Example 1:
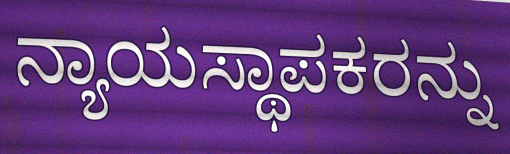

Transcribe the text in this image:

ನ್ಯಾಯಸ್ಥಾಪಕರನ್ನು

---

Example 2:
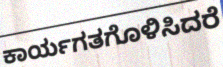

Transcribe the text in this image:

ಕಾರ್ಯಗತಗೊಳಿಸಿದರೆ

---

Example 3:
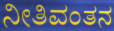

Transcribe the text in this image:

ನೀತಿವಂತನ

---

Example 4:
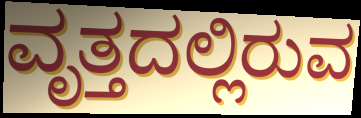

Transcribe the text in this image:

ವೃತ್ತದಲ್ಲಿರುವ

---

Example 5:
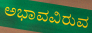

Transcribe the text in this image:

ಅಭಾವವಿರುವ